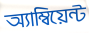
অ্যাম্বিয়েন্ট